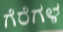
ಗೆರೆಗಳ